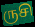
ருசி